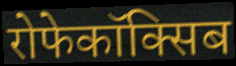
रोफेकॉक्सिब